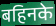
बहिनके